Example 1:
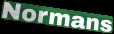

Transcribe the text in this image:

Normans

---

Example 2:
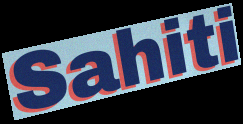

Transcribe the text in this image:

Sahiti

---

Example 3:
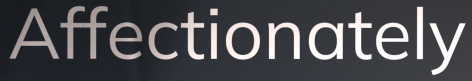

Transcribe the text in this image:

Affectionately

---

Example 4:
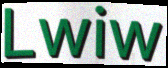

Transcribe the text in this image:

Lwiw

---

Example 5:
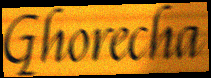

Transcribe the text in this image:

Ghorecha